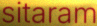
sitaram